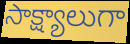
సాక్ష్యాలుగా